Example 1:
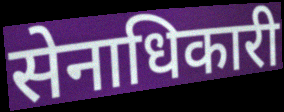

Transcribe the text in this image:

सेनाधिकारी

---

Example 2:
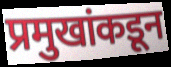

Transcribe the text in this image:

प्रमुखांकडून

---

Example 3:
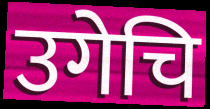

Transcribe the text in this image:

उगेचि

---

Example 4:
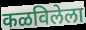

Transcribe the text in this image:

कळविलेला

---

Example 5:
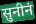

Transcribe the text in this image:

सुनीनं